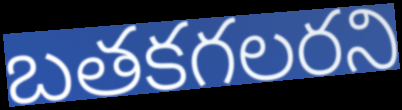
బతకగలరని